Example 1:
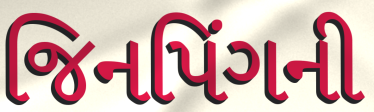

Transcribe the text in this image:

જિનપિંગની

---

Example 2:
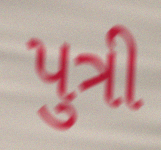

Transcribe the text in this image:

પુત્રી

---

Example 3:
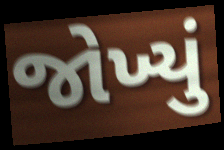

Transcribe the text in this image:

જોખ્યું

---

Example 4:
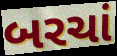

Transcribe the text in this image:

બરચાં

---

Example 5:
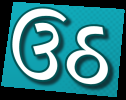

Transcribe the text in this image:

ઉઠ